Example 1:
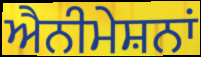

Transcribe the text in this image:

ਐਨੀਮੇਸ਼ਨਾਂ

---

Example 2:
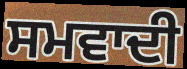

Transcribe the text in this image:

ਸਮਵਾਦੀ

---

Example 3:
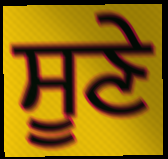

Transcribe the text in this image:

ਸੂਣੇ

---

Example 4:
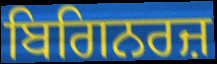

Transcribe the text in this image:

ਬਿਗਿਨਰਜ਼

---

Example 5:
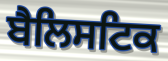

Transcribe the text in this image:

ਬੈਲਿਸਟਿਕ